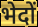
भेदों